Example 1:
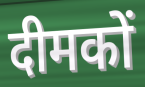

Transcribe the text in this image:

दीमकों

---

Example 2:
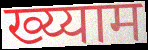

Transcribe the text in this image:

ख्य्याम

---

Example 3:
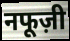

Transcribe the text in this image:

नफूज़ी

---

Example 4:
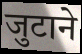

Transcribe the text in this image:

जुटाने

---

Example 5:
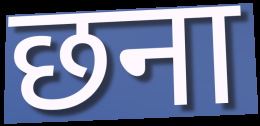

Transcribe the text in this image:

छना